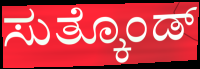
ಸುತ್ಕೊಂಡ್